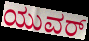
ಯುವರ್